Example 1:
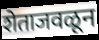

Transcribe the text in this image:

शेताजवळून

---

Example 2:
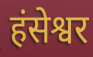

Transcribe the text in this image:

हंसेश्वर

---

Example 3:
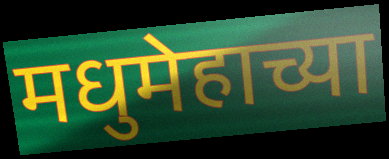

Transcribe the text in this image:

मधुमेहाच्या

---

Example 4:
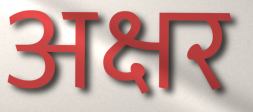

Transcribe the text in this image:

अक्षर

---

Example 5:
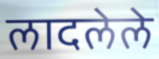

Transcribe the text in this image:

लादलेले